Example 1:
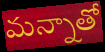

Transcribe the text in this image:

మన్నాతో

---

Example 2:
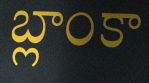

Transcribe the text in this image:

బ్లాంకా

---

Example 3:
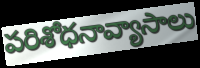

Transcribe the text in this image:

పరిశోధనావ్యాసాలు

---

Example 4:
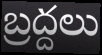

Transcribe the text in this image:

బ్రద్దలు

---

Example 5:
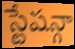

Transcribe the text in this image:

స్టేషన్గా